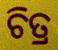
ଚିତ୍ର